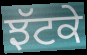
ਝੱਟਕੇ